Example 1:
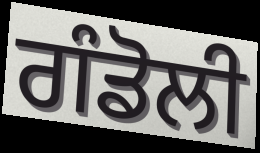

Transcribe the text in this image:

ਗੰਡੋਲੀ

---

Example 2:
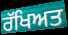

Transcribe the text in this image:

ਰੱਖਿਅਤ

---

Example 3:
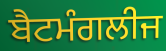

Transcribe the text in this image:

ਬੈਟਮੰਗਲੀਜ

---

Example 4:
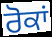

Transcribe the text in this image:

ਰੋਕਾਂ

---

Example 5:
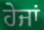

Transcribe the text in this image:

ਹੇਜਾਂ